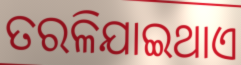
ତରଳିଯାଇଥାଏ